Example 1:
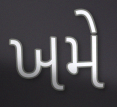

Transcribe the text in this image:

ખમે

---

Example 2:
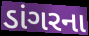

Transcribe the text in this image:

ડાંગરના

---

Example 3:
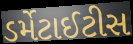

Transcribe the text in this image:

ડર્મેટાઈટીસ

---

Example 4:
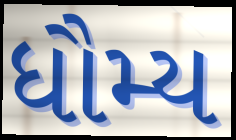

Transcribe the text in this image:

ધૌમ્ય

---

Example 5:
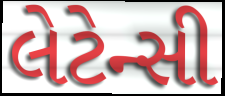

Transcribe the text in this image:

લેટેન્સી